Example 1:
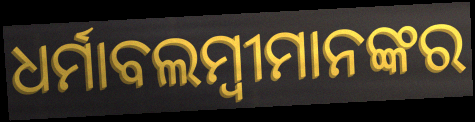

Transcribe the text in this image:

ଧର୍ମାବଲମ୍ବୀମାନଙ୍କର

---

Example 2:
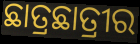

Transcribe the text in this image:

ଛାତ୍ରଛାତ୍ରୀର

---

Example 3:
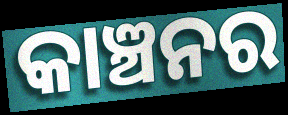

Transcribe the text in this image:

କାଞ୍ଚନର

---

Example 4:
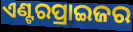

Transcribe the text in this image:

ଏଣ୍ଟରପ୍ରାଇଜର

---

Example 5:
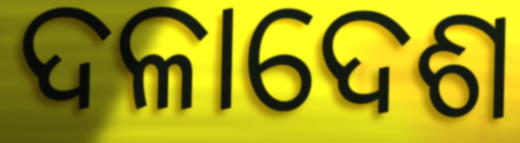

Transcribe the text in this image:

ଦଳାଦେଶ